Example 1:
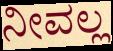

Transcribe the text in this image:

ನೀವಲ್ಲ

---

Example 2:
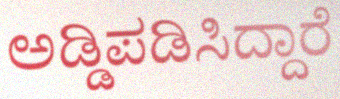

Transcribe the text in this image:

ಅಡ್ಡಿಪಡಿಸಿದ್ದಾರೆ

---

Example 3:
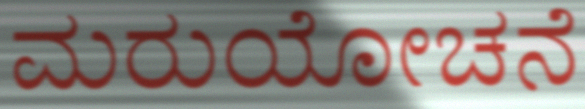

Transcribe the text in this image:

ಮರುಯೋಚನೆ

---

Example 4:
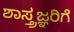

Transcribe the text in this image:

ಶಾಸ್ತ್ರಜ್ಞರಿಗೆ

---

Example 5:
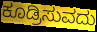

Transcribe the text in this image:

ಕೂಡ್ರಿಸುವದು